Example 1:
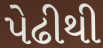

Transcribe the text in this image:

પેઢીથી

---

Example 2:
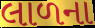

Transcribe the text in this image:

લાળના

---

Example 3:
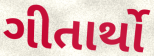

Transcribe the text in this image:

ગીતાર્થો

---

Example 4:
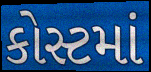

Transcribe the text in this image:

કોસ્ટમાં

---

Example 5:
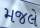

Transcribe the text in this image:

મજલે